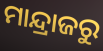
ମାନ୍ଦ୍ରାଜରୁ